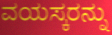
ವಯಸ್ಕರನ್ನು